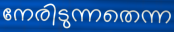
നേരിടുന്നതെന്ന